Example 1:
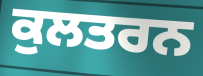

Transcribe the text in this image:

ਕੁਲਤਰਨ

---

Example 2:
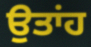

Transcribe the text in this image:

ਉਤਾਂਹ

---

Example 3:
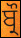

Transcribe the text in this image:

ਬ੍ਰੌ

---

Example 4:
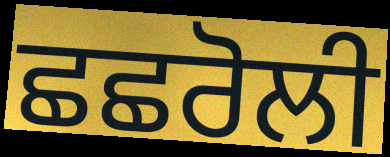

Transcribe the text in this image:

ਛਛਰੋਲੀ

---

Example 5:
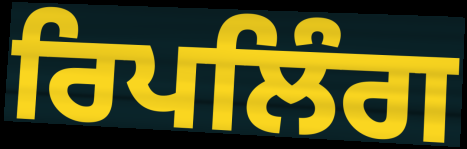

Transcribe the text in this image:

ਰਿਪਲਿੰਗ